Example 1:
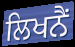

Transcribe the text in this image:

ਲਿਖਨੈਂ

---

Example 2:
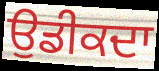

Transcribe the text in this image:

ਉਡੀਕਦਾ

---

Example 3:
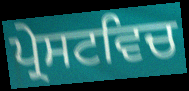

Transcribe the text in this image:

ਪ੍ਰੇਸਟਵਿਚ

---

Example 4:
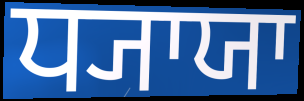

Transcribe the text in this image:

ਧ੍ਯਾਯਾ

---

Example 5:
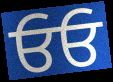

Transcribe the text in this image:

ਓਓ